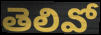
తెలివో